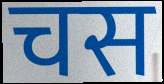
चस